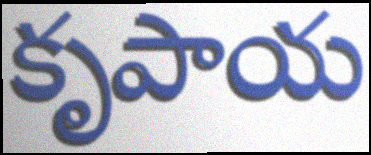
కృపాయ